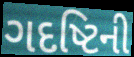
ગદષ્ટિની